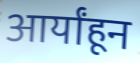
आर्यांहून